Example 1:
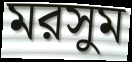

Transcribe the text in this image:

মরসুম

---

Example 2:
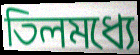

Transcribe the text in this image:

তিলমধ্যে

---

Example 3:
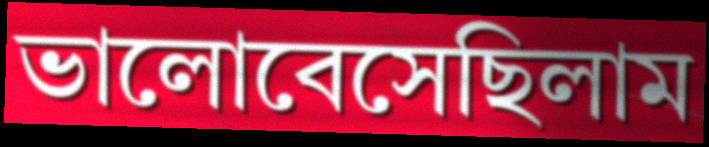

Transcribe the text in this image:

ভালোবেসেছিলাম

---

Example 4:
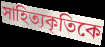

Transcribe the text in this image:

সাহিত্যকৃতিকে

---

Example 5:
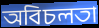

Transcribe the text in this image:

অবিচলতা